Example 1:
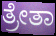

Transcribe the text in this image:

ತ್ರೇತಾ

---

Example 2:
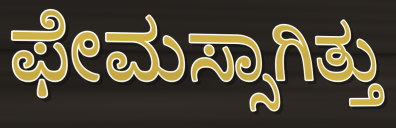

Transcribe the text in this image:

ಫೇಮಸ್ಸಾಗಿತ್ತು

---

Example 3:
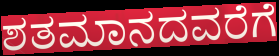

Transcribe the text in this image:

ಶತಮಾನದವರೆಗೆ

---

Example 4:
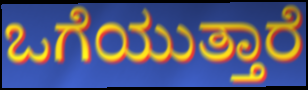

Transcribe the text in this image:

ಒಗೆಯುತ್ತಾರೆ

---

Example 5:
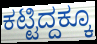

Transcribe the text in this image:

ಕಟ್ಟಿದ್ದಕ್ಕೂ